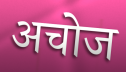
अचोज